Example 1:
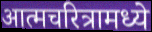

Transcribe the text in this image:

आत्मचरित्रामध्ये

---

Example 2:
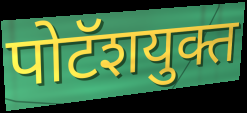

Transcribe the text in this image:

पोटॅशयुक्त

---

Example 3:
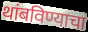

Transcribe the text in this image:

थांबविण्याचा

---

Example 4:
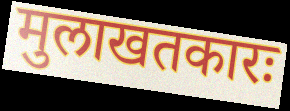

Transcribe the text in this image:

मुलाखतकारः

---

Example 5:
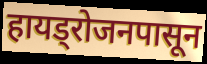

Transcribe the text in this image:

हायड्रोजनपासून